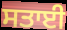
ਸਤਾਈ